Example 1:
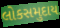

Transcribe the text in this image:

લોકસમુદાય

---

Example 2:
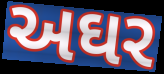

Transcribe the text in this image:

અઘર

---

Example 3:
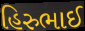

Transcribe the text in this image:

હિરુભાઈ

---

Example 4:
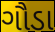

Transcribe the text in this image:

ગૌડા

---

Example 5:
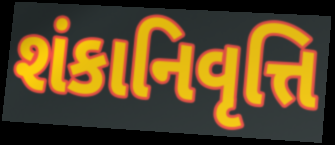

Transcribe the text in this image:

શંકાનિવૃત્તિ